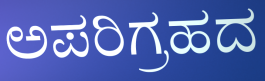
ಅಪರಿಗ್ರಹದ